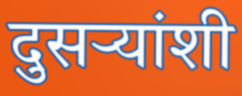
दुसर्‍यांशी